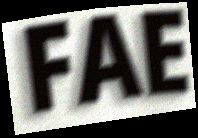
FAE